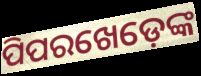
ପିପରଖେଡ଼େଙ୍କ